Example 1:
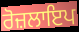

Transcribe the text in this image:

ਰੋਜ਼ਲਾਇਪ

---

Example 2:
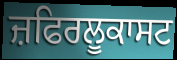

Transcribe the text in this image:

ਜ਼ਫਿਰਲੂਕਾਸਟ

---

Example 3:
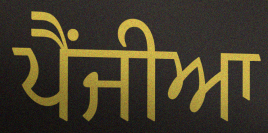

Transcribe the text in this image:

ਪੈਂਜੀਆ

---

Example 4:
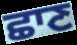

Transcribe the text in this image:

ਛਾਣ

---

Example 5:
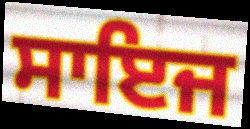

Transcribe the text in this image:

ਸਾਇਜ